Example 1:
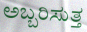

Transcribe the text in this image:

ಅಬ್ಬರಿಸುತ್ತ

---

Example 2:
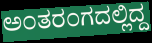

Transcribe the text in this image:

ಅಂತರಂಗದಲ್ಲಿದ್ದ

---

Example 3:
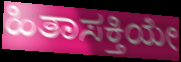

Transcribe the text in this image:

ಹಿತಾಸಕ್ತಿಯೇ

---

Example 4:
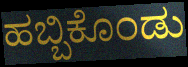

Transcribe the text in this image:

ಹಬ್ಬಿಕೊಂಡು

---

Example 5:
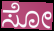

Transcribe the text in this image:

ಸೋ